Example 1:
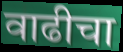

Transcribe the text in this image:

वाढीचा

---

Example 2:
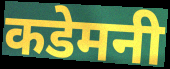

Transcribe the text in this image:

कडेमनी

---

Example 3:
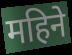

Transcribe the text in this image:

महिने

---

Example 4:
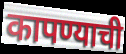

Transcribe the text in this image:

कापण्याची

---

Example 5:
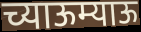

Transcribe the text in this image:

च्याऊम्याऊ